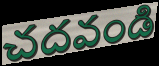
చదవండి